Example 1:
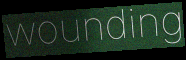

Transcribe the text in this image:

wounding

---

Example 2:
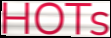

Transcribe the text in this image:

HOTs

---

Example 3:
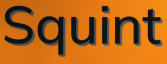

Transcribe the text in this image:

Squint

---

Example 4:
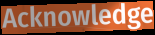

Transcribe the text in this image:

Acknowledge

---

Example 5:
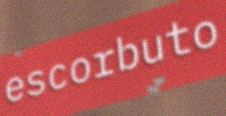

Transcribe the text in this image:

escorbuto